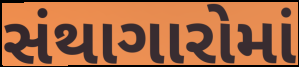
સંથાગારોમાં